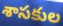
శాసకుల